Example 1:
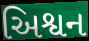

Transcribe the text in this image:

અિશ્વન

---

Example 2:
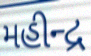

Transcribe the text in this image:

મહીન્દ્ર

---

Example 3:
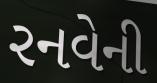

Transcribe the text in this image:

રનવેની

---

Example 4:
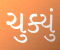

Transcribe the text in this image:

ચુક્યું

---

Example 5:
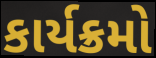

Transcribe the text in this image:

કાર્યક્રમો